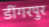
डींगरपुर